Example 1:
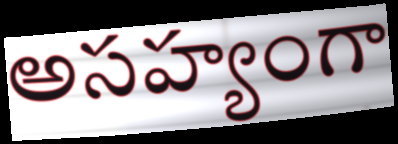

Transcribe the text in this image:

అసహ్యంగా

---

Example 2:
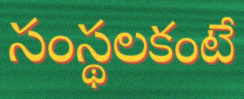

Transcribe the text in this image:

సంస్థలకంటే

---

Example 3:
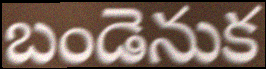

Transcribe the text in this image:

బండెనుక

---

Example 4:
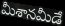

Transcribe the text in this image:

మీశానమీడే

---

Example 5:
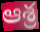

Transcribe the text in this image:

ఆశ్ర